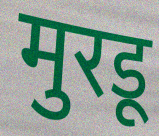
मुरडू